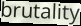
brutality